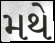
મથે